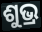
ଶୁଭ୍ର